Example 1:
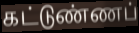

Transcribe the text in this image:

கட்டுண்ணப்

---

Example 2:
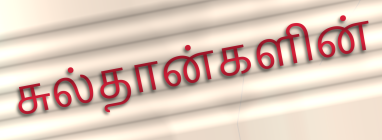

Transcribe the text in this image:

சுல்தான்களின்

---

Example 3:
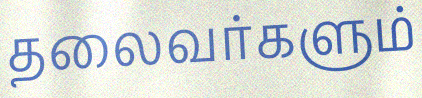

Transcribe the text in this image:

தலைவர்களும்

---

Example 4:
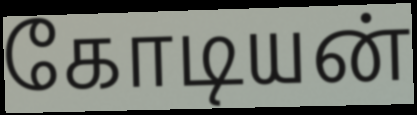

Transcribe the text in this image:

கோடியன்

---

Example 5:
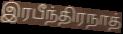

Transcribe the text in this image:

இரபீந்திரநாத்